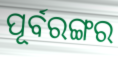
ପୂର୍ବରଙ୍ଗର